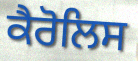
ਕੈਰੋਲਿਸ